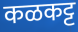
कळकट्ट